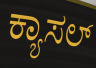
ಕ್ಯಾಸಲ್